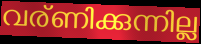
വര്ണിക്കുന്നില്ല